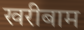
खरीबाम